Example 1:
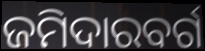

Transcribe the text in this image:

ଜମିଦାରବର୍ଗ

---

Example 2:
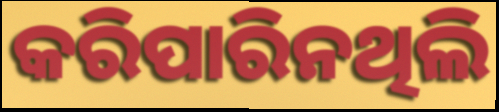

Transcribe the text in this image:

କରିପାରିନଥିଲି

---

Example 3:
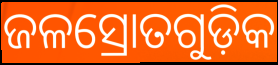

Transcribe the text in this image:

ଜଳସ୍ରୋତଗୁଡ଼ିକ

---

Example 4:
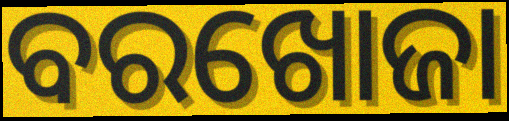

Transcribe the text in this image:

ବରଖୋଜା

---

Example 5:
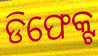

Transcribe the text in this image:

ଡିଫେକ୍ଟ